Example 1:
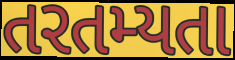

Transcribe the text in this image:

તરતમ્યતા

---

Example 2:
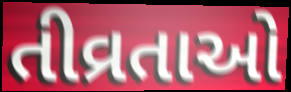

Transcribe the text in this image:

તીવ્રતાઓ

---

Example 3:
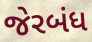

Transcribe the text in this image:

જેરબંધ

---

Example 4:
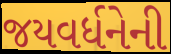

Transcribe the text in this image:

જયવર્ધનેની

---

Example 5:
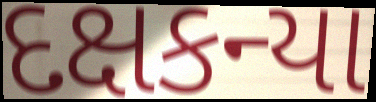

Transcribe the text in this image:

દક્ષકન્યા